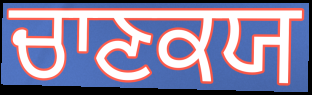
ਚਾਣਕਯ